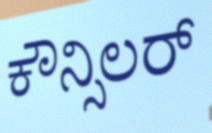
ಕೌನ್ಸಿಲರ್